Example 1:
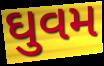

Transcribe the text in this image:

ઘુવમ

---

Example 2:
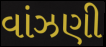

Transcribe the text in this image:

વાંઝણી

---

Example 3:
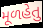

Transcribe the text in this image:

મૂળહેતુ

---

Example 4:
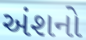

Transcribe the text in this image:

અંશનો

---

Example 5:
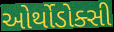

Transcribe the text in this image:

ઓર્થોડોક્સી